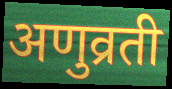
अणुव्रती